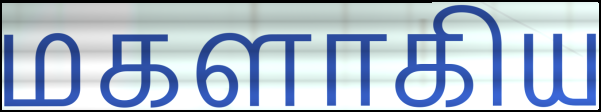
மகளாகிய